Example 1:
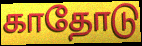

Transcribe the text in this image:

காதோடு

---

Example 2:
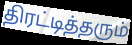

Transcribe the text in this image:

திரட்டித்தரும்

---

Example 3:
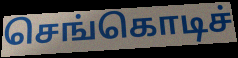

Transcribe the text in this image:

செங்கொடிச்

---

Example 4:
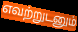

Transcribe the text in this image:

எவற்றுடனும்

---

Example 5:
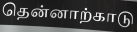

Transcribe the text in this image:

தென்னாற்காடு